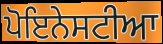
ਪੋਇਨੇਸਟੀਆ